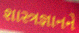
શાસ્ત્રજ્ઞાનને